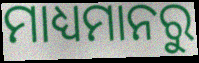
ମାଧ୍ୟମାନରୁ